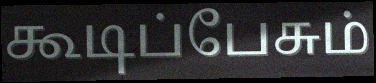
கூடிப்பேசும்